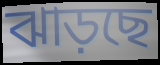
ঝাড়ছে